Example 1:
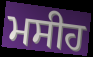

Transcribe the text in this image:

ਮਸੀਹ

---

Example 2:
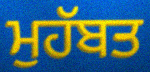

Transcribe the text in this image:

ਮੁਹੱਬਤ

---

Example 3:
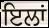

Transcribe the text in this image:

ਇਲਾਂ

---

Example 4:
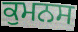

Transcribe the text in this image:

ਕੁਮਨਸ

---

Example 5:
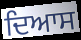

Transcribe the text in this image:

ਦਿਆਸ